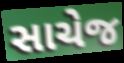
સાચેજ